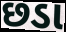
છડા